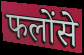
फलोंसे